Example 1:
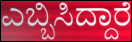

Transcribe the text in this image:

ಎಬ್ಬಿಸಿದ್ದಾರೆ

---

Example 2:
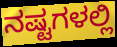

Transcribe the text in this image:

ನಷ್ಟಗಳಲ್ಲಿ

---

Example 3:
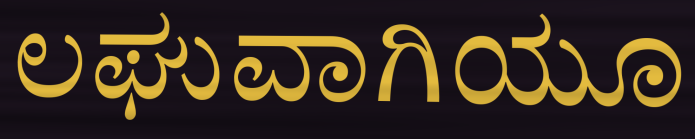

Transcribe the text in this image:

ಲಘುವಾಗಿಯೂ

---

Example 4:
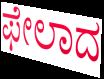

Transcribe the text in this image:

ಫೇಲಾದ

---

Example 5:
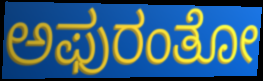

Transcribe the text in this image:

ಅಫುರಂತೋ